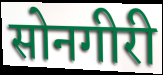
सोनगीरी